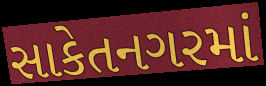
સાકેતનગરમાં